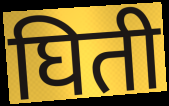
घिती